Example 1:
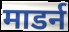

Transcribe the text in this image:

माडर्न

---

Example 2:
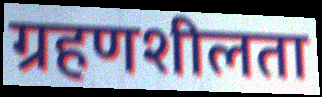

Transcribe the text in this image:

ग्रहणशीलता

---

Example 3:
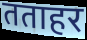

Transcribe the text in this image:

तताहर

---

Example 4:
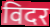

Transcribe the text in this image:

विदर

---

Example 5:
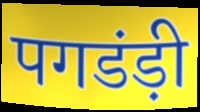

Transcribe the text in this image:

पगडंड़ी